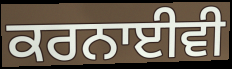
ਕਰਨਾਈਵੀ